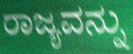
ರಾಜ್ಯವನ್ನು